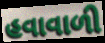
હવાવાળી